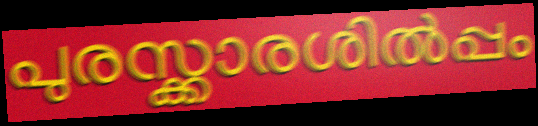
പുരസ്ക്കാരശിൽപ്പം